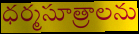
ధర్మసూత్రాలను